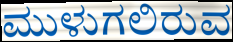
ಮುಳುಗಲಿರುವ